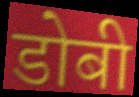
डोबी